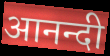
आनन्दी